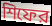
শিফের